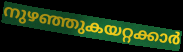
നുഴഞ്ഞുകയറ്റക്കാർ